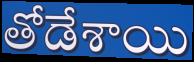
తోడేశాయి